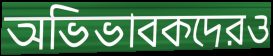
অভিভাবকদেরও